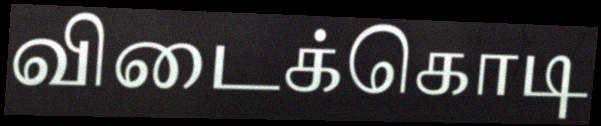
விடைக்கொடி